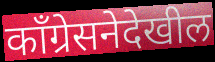
काँग्रेसनेदेखील